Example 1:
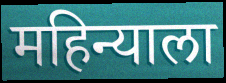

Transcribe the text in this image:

महिन्याला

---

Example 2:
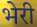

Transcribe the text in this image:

भेरी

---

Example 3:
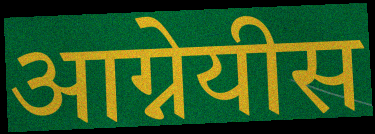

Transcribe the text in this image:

आग्नेयीस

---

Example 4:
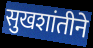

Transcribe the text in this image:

सुखशांतीने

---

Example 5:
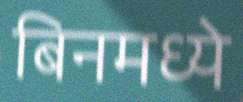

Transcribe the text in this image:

बिनमध्ये